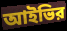
আইভির